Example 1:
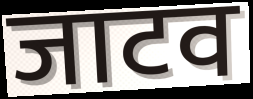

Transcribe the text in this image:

जाटव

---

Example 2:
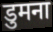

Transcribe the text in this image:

डुमना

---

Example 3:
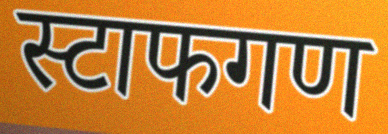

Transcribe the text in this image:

स्टाफगण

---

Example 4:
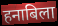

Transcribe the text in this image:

हनाबिला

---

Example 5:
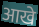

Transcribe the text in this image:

आखे